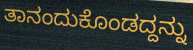
ತಾನಂದುಕೊಂಡದ್ದನ್ನು